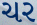
ચર